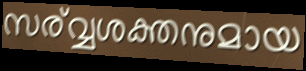
സര്വ്വശക്തനുമായ